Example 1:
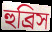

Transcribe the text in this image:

হুব্রিস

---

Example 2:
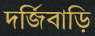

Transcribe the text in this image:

দর্জিবাড়ি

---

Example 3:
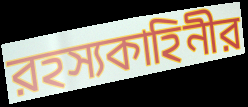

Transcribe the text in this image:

রহস্যকাহিনীর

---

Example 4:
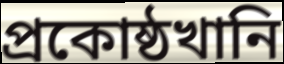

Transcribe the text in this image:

প্রকোষ্ঠখানি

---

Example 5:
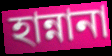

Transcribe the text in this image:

হান্নানা